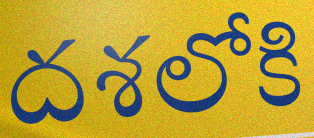
దశలోకి